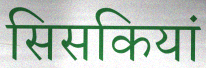
सिसकियां